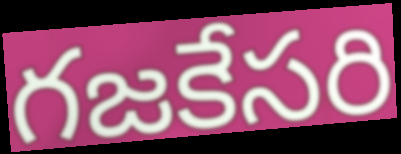
గజకేసరి